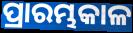
ପ୍ରାରମ୍ଭକାଳ